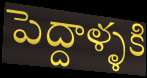
పెద్దాళ్ళకి